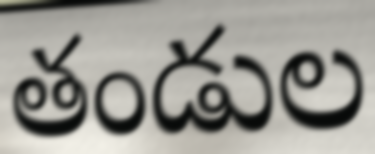
తండుల